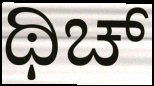
ಥಿಚ್